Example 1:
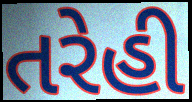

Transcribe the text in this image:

તરેહી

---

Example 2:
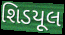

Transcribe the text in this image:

શિડયૂલ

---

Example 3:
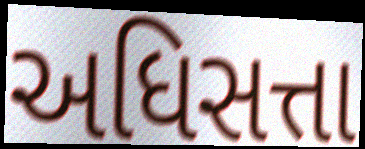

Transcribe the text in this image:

અધિસત્તા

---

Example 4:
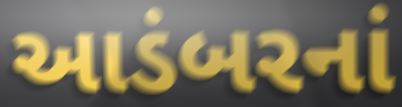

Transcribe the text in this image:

આડંબરનાં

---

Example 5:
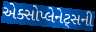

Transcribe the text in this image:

એક્સોપ્લેનેટ્સની